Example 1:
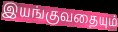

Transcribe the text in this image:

இயங்குவதையும்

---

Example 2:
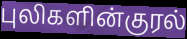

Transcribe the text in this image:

புலிகளின்குரல்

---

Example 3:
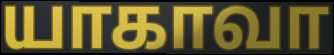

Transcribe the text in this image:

யாகாவா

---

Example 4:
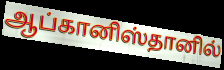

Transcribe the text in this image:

ஆப்கானிஸ்தானில்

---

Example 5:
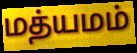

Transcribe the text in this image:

மத்யமம்